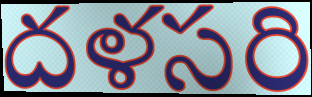
దళసరి